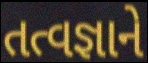
તત્વજ્ઞાને